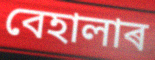
বেহালাৰ